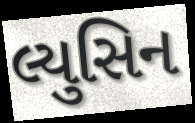
લ્યુસિન